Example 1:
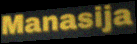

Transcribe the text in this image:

Manasija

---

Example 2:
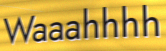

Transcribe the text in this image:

Waaahhhh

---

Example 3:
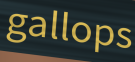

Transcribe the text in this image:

gallops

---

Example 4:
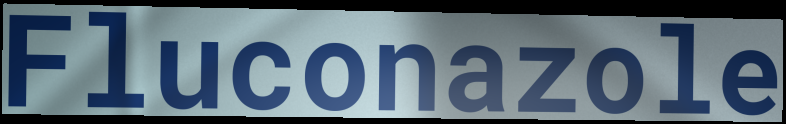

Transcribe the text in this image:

Fluconazole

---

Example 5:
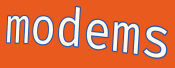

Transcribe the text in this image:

modems